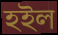
হইল